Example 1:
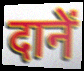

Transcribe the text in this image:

दानें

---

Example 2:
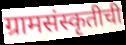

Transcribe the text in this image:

ग्रामसंस्कृतीची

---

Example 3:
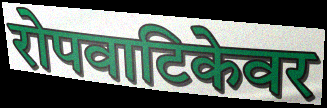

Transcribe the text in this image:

रोपवाटिकेवर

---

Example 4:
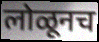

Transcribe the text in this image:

लोळूनच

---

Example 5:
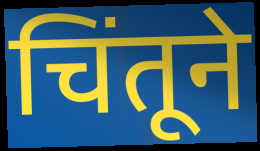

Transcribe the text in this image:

चिंतूने